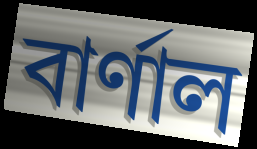
বাৰ্ণাল